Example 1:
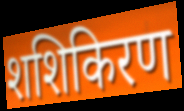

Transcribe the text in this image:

शशिकिरण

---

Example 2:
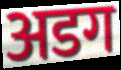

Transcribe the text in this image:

अडग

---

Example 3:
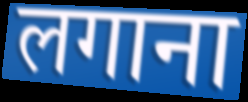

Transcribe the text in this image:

लगाना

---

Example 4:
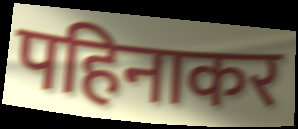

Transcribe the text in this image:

पहिनाकर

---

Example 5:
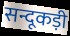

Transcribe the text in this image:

सन्दूकड़ी